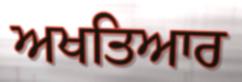
ਅਖਤਿਆਰ